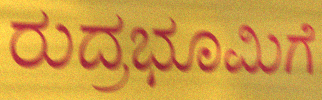
ರುದ್ರಭೂಮಿಗೆ